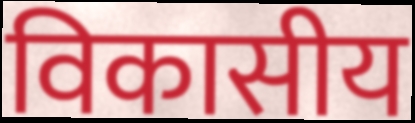
विकासीय